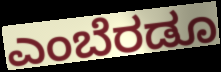
ಎಂಬೆರಡೂ